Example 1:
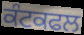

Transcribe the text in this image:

ਕੰਟਕਫਲ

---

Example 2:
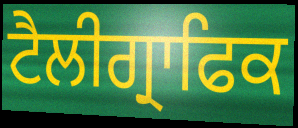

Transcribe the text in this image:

ਟੈਲੀਗ੍ਰਾਫਿਕ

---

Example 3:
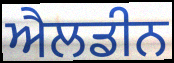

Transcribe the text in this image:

ਐਲਡੀਨ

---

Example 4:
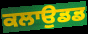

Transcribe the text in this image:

ਕਲਾਉਡਡ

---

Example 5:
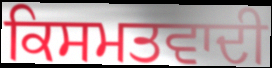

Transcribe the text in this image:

ਕਿਸਮਤਵਾਦੀ